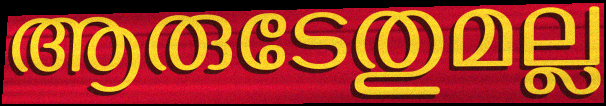
ആരുടേതുമല്ല